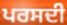
ਪਰਸਦੀ